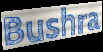
Bushra